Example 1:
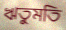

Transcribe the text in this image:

ঋতুমতি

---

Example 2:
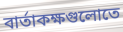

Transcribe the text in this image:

বার্তাকক্ষগুলোতে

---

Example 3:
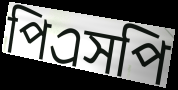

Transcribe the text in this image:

পিএসপি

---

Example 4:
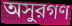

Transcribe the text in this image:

অসুরগণ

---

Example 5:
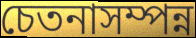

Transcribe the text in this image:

চেতনাসম্পন্ন